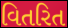
વિતરિત